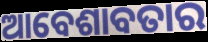
ଆବେଶାବତାର